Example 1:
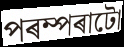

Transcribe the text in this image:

পৰম্পৰাটো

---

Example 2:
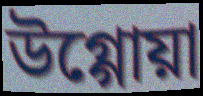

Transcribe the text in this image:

উগ্গোয়া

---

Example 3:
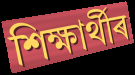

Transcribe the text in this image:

শিক্ষাৰ্থীৰ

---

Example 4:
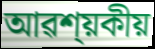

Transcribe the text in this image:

আৱশ্য়কীয়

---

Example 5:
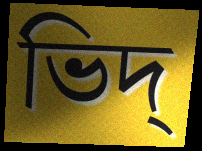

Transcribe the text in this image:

ভিদ্